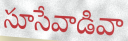
సూసేవాడివా